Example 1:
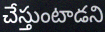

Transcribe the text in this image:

చేస్తుంటాడని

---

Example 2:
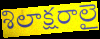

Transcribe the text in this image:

శిలాక్షరాలై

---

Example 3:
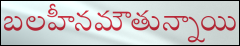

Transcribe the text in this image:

బలహీనమౌతున్నాయి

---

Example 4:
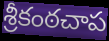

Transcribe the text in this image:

శ్రీకంఠచాప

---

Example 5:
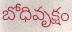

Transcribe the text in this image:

బోధివృక్షం